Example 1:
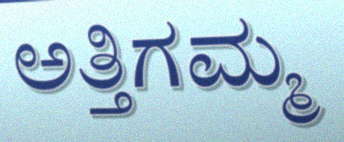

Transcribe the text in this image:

ಅತ್ತಿಗಮ್ಮ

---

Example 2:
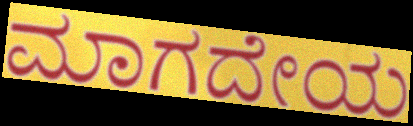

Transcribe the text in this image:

ಮಾಗದೇಯ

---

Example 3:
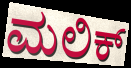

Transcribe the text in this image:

ಮಲಿಕ್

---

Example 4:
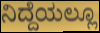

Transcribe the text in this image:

ನಿದ್ದೆಯಲ್ಲೂ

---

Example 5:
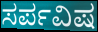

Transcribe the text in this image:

ಸರ್ಪವಿಷ